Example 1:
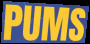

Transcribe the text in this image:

PUMS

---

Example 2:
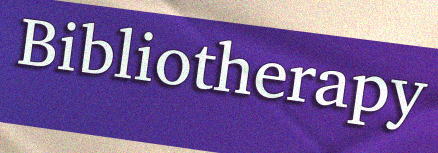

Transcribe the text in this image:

Bibliotherapy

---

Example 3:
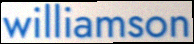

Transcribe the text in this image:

williamson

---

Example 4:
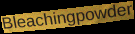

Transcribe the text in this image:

Bleachingpowder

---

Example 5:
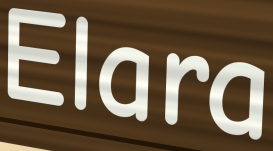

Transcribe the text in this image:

Elara